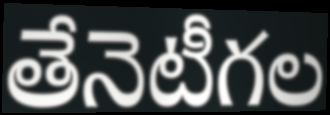
తేనెటీగల